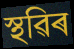
স্থৱিৰ